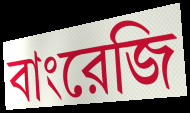
বাংরেজি